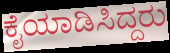
ಕೈಯಾಡಿಸಿದ್ದರು